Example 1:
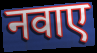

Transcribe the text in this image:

नवाए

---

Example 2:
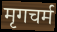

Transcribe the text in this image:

मृगचर्म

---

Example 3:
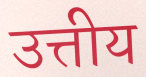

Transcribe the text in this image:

उत्तीय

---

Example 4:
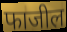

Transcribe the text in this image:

फाजील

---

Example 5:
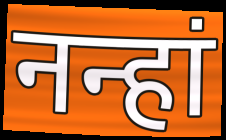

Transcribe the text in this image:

नन्हां